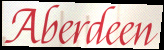
Aberdeen